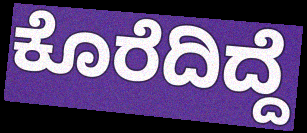
ಕೊರೆದಿದ್ದೆ